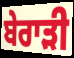
ਬੇਰਾੜੀ